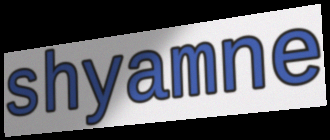
shyamne